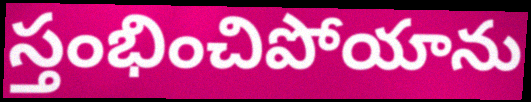
స్తంభించిపోయాను